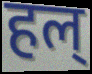
हल्